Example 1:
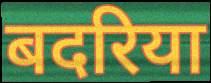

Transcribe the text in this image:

बदरिया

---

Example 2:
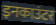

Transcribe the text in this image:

इनकाउंटर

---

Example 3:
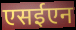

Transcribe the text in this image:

एसईएन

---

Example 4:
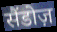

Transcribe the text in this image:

सैंडोज़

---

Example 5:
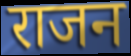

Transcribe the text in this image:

राजन